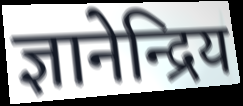
ज्ञानेन्द्रिय